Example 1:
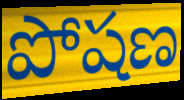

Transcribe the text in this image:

పోషణ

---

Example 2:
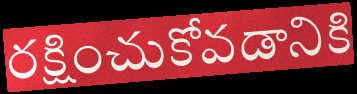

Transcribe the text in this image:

రక్షించుకోవడానికి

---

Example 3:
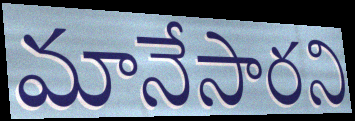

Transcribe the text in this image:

మానేసారని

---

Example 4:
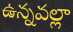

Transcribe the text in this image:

ఉన్నవల్లా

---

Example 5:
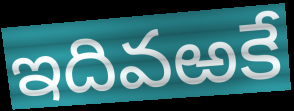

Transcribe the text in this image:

ఇదివఱకే